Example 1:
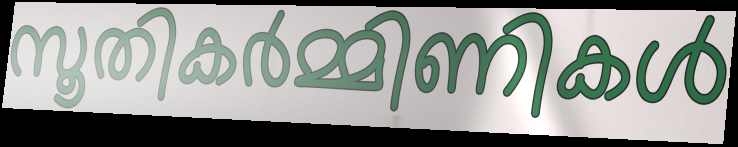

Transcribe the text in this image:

സൂതികർമ്മിണികൾ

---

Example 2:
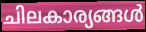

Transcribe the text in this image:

ചിലകാര്യങ്ങൾ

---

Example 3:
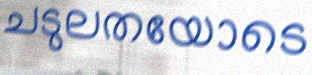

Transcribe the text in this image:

ചടുലതയോടെ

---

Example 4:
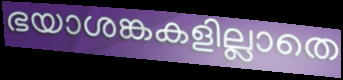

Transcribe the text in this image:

ഭയാശങ്കകളില്ലാതെ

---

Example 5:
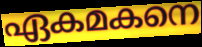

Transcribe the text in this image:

ഏകമകനെ